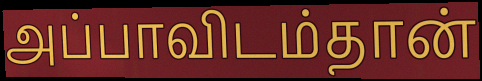
அப்பாவிடம்தான்